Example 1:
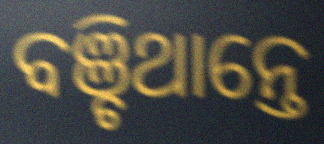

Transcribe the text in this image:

ବଞ୍ଚିଥାନ୍ତେ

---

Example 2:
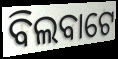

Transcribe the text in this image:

ବିଲବାଟେ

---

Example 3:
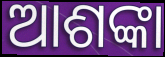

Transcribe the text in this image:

ଆଶଙ୍କା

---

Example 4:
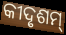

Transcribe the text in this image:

କୀଦୃଶମ୍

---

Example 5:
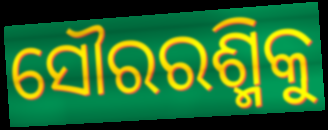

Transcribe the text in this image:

ସୌରରଶ୍ମିକୁ